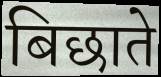
बिछाते